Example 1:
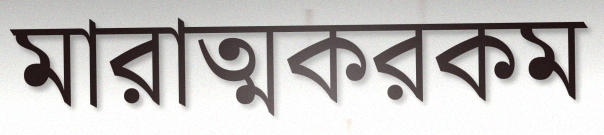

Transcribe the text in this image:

মারাত্মকরকম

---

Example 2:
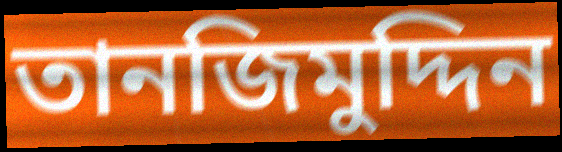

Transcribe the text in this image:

তানজিমুদ্দিন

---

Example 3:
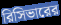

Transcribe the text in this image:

রিসিভারের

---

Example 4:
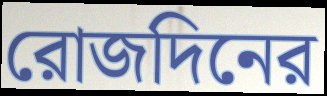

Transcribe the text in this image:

রোজদিনের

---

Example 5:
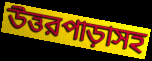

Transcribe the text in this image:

উত্তরপাড়াসহ